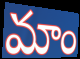
మాం